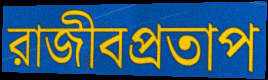
রাজীবপ্রতাপ